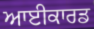
ਆਈਕਾਰਡ